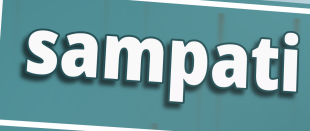
sampati